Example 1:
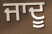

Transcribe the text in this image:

ਜਾਦੂ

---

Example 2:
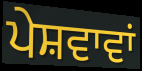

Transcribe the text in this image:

ਪੇਸ਼ਵਾਵਾਂ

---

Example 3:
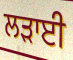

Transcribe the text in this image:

ਲੜਾਈ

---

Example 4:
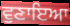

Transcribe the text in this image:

ਵੁਣਾਇਆ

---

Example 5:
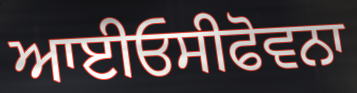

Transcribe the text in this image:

ਆਈਓਸੀਫੋਵਨਾ